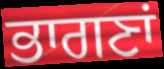
ਭਾਗਣਾਂ